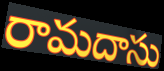
రామదాసు